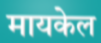
मायकेल